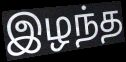
இழந்த